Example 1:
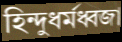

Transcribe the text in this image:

হিন্দুধর্মধ্বজা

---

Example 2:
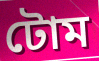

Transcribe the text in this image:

টোম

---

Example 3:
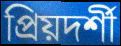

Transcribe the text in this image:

প্রিয়দর্শী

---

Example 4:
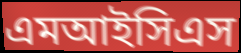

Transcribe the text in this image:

এমআইসিএস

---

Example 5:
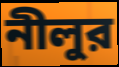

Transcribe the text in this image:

নীলুর